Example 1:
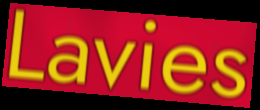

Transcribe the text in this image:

Lavies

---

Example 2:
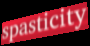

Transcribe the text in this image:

spasticity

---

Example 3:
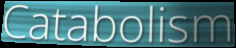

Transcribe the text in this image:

Catabolism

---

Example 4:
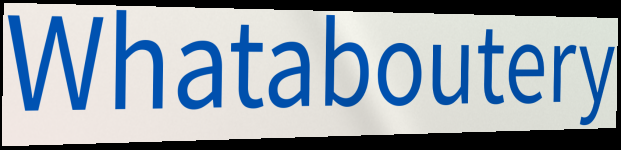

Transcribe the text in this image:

Whataboutery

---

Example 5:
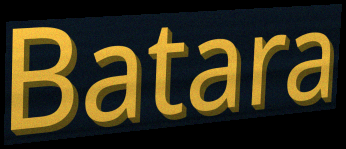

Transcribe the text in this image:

Batara